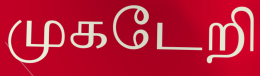
முகடேறி